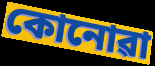
কোনোৱা